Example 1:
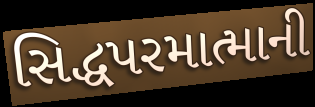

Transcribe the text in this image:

સિદ્ધપરમાત્માની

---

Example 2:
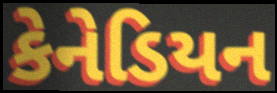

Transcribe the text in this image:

કેનેડિયન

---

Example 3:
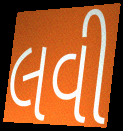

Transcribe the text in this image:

લવી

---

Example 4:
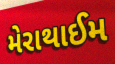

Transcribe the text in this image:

મેરાથાઈમ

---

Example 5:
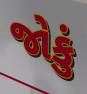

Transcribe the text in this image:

જોકું